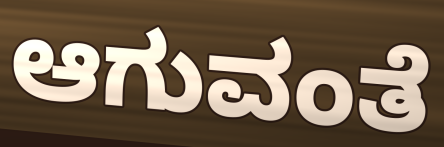
ಆಗುವಂತೆ